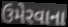
ઉમેરવાના